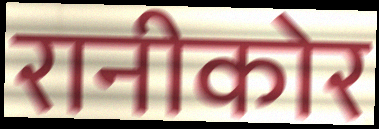
रानीकोर